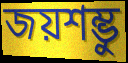
জয়শম্ভু